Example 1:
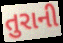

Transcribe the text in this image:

તુરાની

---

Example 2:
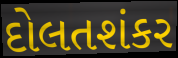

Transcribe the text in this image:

દોલતશંકર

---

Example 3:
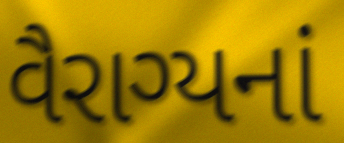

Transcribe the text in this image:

વૈરાગ્યનાં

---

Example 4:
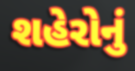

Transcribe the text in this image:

શહેરોનું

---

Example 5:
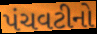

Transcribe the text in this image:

પંચવટીનો